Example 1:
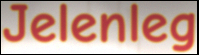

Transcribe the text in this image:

Jelenleg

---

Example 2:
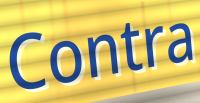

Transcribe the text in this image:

Contra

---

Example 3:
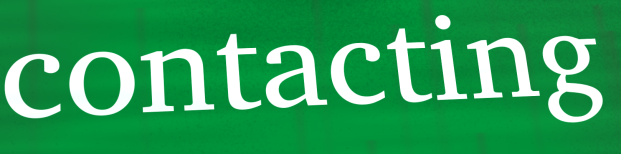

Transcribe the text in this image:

contacting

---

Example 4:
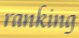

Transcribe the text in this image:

ranking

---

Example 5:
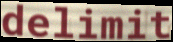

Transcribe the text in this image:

delimit